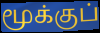
மூக்குப்